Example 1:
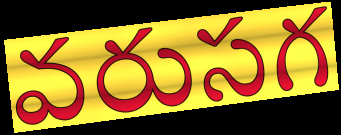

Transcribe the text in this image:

వరుసగ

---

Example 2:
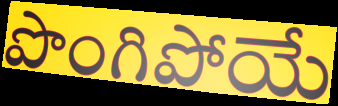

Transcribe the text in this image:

పొంగిపోయే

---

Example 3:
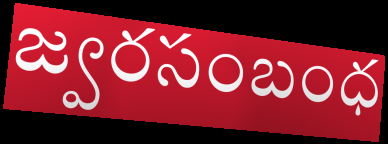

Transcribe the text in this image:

జ్వరసంబంధ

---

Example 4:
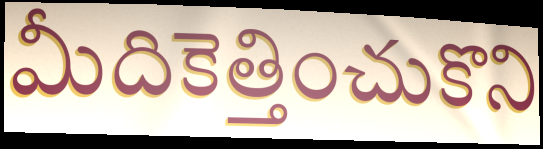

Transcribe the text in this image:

మీదికెత్తించుకొని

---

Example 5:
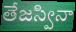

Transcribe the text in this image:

తేజస్వినా